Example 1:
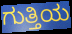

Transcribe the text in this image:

ಗುತ್ತಿಯ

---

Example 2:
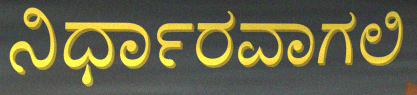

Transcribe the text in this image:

ನಿರ್ಧಾರವಾಗಲಿ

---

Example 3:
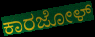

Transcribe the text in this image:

ಕಾರಜೋಳ್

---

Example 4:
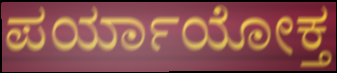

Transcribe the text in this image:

ಪರ್ಯಾಯೋಕ್ತ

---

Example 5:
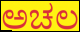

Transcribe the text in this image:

ಅಚಲ